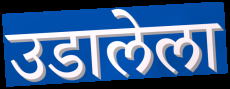
उडालेला